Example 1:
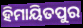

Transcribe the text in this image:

ହିମାୟିତପୁର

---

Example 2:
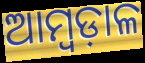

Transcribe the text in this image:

ଆମ୍ବଡ଼ାଳ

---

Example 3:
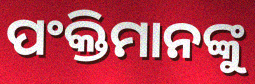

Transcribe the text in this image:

ପଂକ୍ତିମାନଙ୍କୁ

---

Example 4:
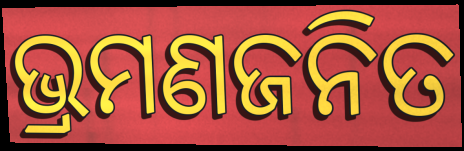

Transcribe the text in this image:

ଭ୍ରମଣଜନିତ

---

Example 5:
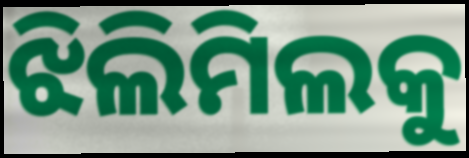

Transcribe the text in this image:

ଝିଲିମିଲକୁ